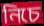
নিচে